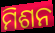
ମିଶନ